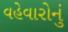
વહેવારોનું